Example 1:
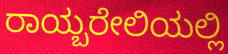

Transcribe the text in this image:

ರಾಯ್ಬರೇಲಿಯಲ್ಲಿ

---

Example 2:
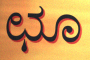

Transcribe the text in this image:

ಛೂ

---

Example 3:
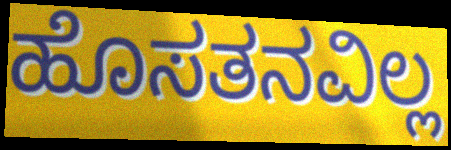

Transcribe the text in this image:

ಹೊಸತನವಿಲ್ಲ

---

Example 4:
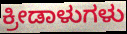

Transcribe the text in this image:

ಕ್ರೀಡಾಳುಗಳು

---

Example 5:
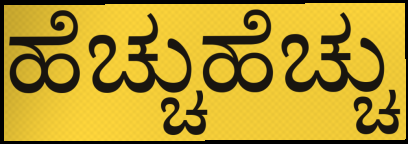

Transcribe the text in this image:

ಹೆಚ್ಚುಹೆಚ್ಚು